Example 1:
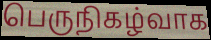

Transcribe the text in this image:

பெருநிகழ்வாக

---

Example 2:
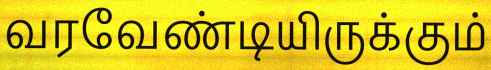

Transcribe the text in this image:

வரவேண்டியிருக்கும்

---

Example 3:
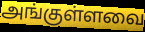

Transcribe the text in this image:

அங்குள்ளவை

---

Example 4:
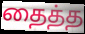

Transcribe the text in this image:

தைத்த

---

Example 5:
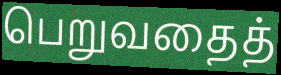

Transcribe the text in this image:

பெறுவதைத்